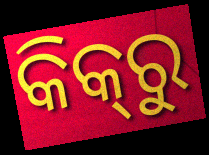
କିକ୍‍ରୁ